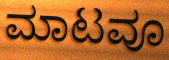
ಮಾಟವೂ